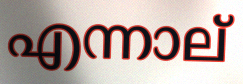
എന്നാല്